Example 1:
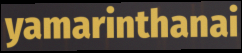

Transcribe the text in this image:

yamarinthanai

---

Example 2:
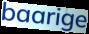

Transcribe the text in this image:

baarige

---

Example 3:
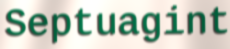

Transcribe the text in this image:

Septuagint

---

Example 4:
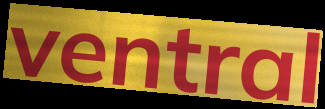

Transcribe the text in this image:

ventral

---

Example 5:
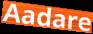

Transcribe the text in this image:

Aadare